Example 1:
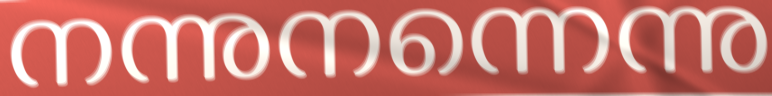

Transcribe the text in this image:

നന്നുനന്നെന്നു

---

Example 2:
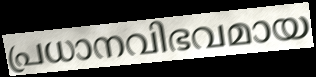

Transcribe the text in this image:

പ്രധാനവിഭവമായ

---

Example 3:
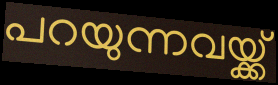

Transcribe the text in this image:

പറയുന്നവയ്ക്ക്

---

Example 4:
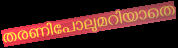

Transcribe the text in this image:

തരണിപോലുമറിയാതെ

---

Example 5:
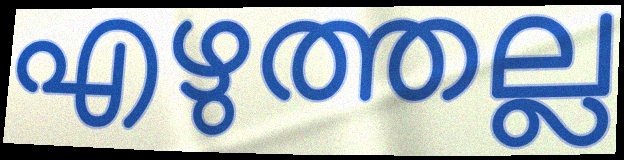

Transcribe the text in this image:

എഴുത്തല്ല